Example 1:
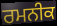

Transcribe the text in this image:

ਰਮਨੀਕ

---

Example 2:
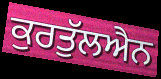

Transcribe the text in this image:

ਕੁਰਤੁੱਲਐਨ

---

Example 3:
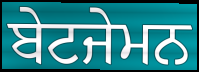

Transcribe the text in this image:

ਬੇਟਜੇਮਨ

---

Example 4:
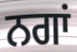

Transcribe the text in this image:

ਨਗਾਂ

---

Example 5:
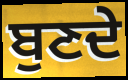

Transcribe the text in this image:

ਬੁਣਦੇ